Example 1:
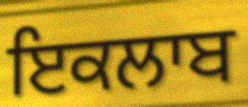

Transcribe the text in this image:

ਇਕਲਾਬ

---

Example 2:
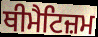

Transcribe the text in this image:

ਥੀਮੈਟਿਜ਼ਮ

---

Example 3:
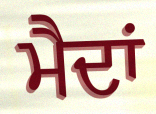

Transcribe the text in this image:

ਮੈਦਾਂ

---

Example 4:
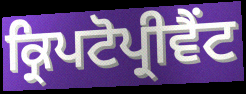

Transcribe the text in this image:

ਕ੍ਰਿਪਟੋਪ੍ਰੀਵੈਂਟ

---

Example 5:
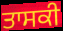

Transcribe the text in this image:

ਤਾਸਕੀ